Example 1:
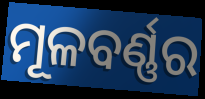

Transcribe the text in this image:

ମୂଳବର୍ଣ୍ଣର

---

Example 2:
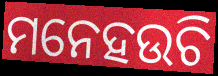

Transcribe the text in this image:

ମନେହଉଚି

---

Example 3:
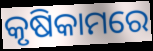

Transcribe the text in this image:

କୃଷିକାମରେ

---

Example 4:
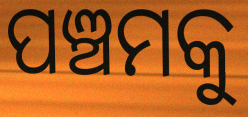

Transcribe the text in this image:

ପଞ୍ଚମକୁ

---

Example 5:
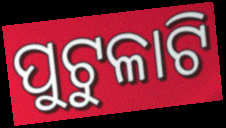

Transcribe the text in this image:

ପୁଟୁଳାଟି